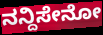
ನನ್ದಿಸೇನೋ